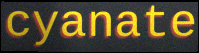
cyanate